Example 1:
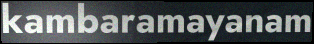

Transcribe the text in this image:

kambaramayanam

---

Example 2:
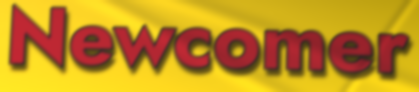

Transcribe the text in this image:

Newcomer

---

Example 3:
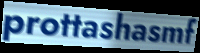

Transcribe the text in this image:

prottashasmf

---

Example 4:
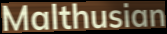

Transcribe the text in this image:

Malthusian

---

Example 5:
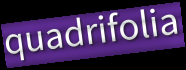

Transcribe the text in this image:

quadrifolia